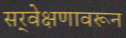
सर्वेक्षणावरून